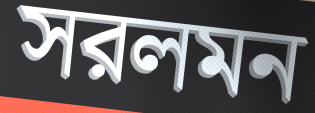
সরলমন